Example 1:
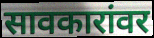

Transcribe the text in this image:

सावकारांवर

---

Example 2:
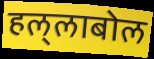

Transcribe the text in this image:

हल्लाबोल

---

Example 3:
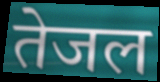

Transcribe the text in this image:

तेजल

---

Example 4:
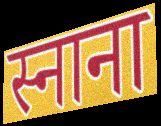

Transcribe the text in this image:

स्नाना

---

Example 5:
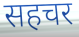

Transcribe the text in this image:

सहचर